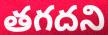
తగదని